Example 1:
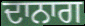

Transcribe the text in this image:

ਦਾਨਾਗ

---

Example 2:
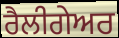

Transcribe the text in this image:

ਰੈਲੀਗੇਅਰ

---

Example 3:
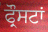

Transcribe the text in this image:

ਫ੍ਰੌਸਟਾਂ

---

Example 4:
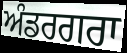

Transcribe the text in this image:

ਅੰਡਰਗਰਾ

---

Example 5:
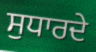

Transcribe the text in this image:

ਸੁਧਾਰਦੇ